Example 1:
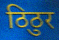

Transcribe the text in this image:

ठिठुर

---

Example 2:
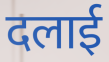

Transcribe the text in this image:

दलाई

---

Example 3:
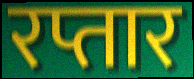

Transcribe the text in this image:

रप्तार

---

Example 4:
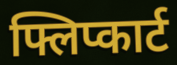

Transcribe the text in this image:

फ्लिप्कार्ट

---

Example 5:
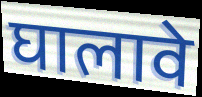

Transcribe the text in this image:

घालावे